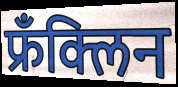
फ्रँक्लिन